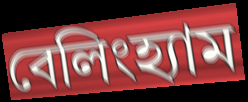
বেলিংহ্যাম